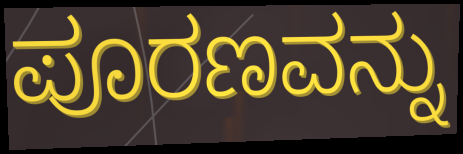
ಪೂರಣವನ್ನು